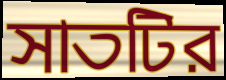
সাতটির